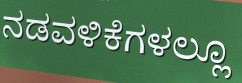
ನಡವಳಿಕೆಗಳಲ್ಲೂ